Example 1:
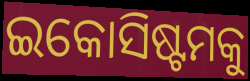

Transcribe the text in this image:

ଇକୋସିଷ୍ଟମକୁ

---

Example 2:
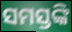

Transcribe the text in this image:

ସମସ୍ତଙ୍କି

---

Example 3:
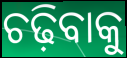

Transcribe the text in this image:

ଚଢ଼ିବାକୁ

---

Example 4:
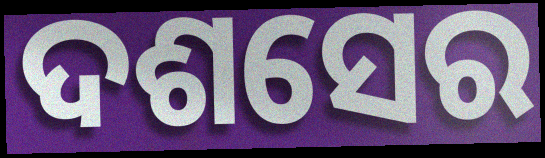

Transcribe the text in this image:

ଦଶସେର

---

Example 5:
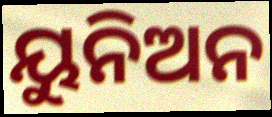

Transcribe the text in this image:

ୟୁନିଅନ